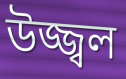
উজ্জ্বল